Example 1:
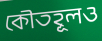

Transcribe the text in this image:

কৌতহূলও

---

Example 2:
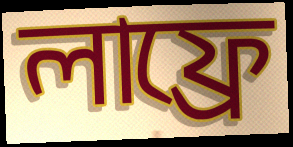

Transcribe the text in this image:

লাফ্রে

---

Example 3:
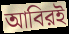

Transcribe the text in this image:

আবিরই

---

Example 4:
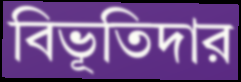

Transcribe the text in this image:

বিভূতিদার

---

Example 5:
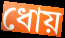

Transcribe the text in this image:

ধোয়